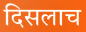
दिसलाच